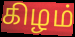
கிழம்